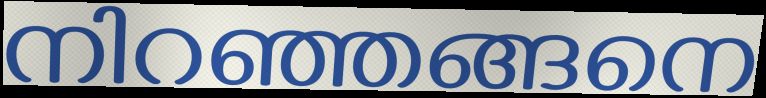
നിറഞ്ഞങ്ങനെ